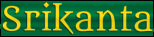
Srikanta